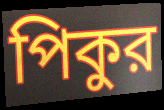
পিকুর